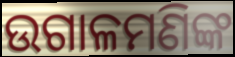
ଉଗାଳମଣିଙ୍କ